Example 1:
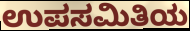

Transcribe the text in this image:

ಉಪಸಮಿತಿಯ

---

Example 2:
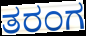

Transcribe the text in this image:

ತರಂಗ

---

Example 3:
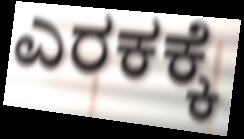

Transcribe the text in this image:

ಎರಕಕ್ಕೆ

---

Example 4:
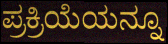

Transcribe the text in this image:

ಪ್ರಕ್ರಿಯೆಯನ್ನೂ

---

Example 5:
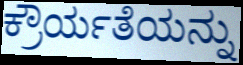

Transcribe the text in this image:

ಕ್ರೌರ್ಯತೆಯನ್ನು